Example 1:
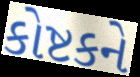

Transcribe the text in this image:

કોષ્ટકને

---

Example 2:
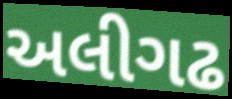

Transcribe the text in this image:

અલીગઢ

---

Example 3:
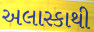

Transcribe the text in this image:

અલાસ્કાથી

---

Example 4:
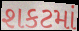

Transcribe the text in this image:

શકટમાં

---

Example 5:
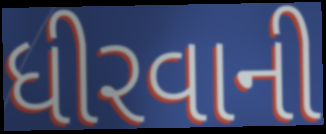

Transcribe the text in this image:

ધીરવાની